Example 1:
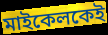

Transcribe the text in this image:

মাইকেলকেই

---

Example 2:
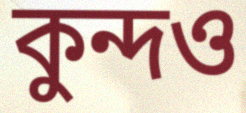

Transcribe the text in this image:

কুন্দও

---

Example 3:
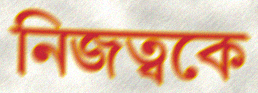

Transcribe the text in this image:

নিজত্বকে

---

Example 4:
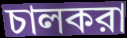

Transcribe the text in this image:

চালকরা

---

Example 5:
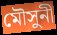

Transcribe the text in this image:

মৌসুনী